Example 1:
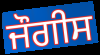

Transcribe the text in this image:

ਜੌਗੀਸ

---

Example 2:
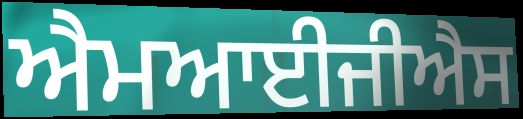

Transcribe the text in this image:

ਐਮਆਈਜੀਐਸ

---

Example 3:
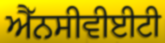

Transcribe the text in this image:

ਐੱਨਸੀਵੀਈਟੀ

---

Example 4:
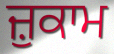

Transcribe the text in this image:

ਜ਼ੁਕਾਮ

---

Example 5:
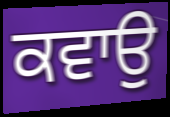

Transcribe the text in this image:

ਕਵਾਉ